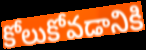
కోలుకోవడానికి